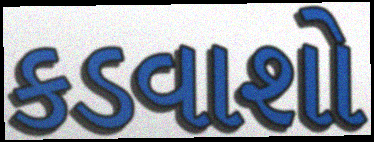
કડવાશો